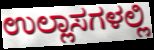
ಉಲ್ಲಾಸಗಳಲ್ಲಿ